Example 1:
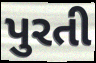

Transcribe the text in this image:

પુરતી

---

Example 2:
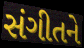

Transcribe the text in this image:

સંગીતને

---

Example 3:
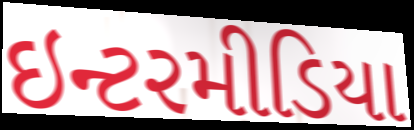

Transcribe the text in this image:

ઇન્ટરમીડિયા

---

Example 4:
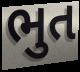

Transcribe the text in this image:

ભુત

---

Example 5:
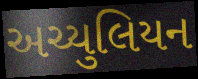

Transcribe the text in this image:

અચ્યુલિયન